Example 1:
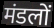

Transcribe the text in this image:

मंडलों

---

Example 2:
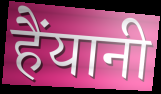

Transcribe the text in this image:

हैंयानी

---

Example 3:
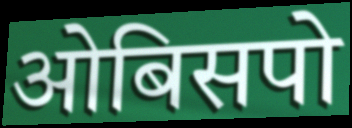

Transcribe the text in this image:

ओबिसपो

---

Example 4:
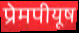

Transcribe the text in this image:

प्रेमपीयूष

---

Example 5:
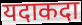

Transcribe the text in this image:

यदाकदा